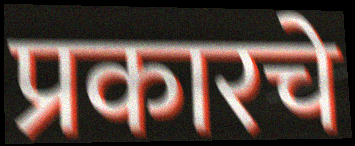
प्रकारचे